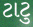
ટાટુ